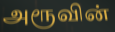
அரூவின்